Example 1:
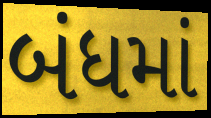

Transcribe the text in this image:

બંધમાં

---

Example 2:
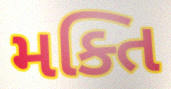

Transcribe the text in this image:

મક્તિ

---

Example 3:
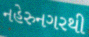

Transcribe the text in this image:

નહેરુનગરથી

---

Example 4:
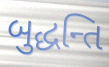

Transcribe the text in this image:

બુદ્ધન્તિ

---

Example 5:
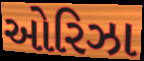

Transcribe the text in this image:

ઓરિઝા